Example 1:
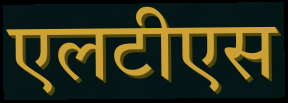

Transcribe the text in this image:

एलटीएस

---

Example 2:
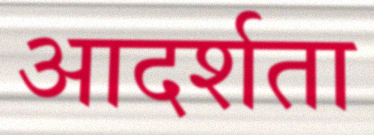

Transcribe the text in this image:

आदर्शता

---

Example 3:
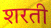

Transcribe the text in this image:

शरती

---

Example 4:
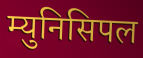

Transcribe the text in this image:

म्युनिसिपल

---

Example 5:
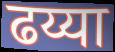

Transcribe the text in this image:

ढय्या